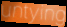
untying